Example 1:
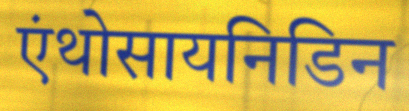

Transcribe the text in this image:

एंथोसायनिडिन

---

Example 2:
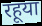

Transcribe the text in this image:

रहूया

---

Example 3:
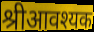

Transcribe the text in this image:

श्रीआवश्यक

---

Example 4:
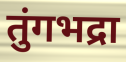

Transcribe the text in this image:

तुंगभद्रा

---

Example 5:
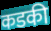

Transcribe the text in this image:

कडकी